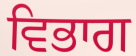
ਵਿਭਾਗ